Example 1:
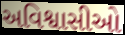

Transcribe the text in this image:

અવિશ્વાસીઓ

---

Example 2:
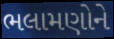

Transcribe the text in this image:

ભલામણોને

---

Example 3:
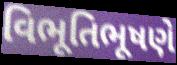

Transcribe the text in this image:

વિભૂતિભૂષણે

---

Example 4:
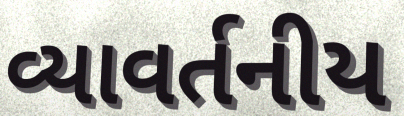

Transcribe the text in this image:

વ્યાવર્તનીય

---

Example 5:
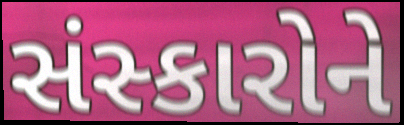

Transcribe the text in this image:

સંસ્કારોને